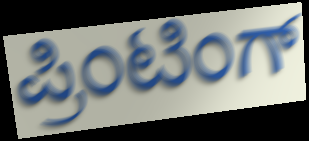
ಪ್ರಿಂಟಿಂಗ್